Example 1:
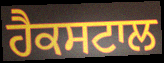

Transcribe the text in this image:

ਹੈਕਸਟਾਲ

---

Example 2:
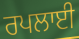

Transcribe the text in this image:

ਰਪਲਾਈ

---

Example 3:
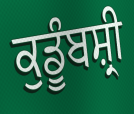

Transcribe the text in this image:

ਕੁਡੂੰਬਸ਼੍ਰੀ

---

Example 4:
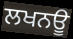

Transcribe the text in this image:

ਲਖਨਊ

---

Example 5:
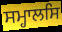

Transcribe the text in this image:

ਸਮ੍ਹ੍ਹਾਲਸਿ